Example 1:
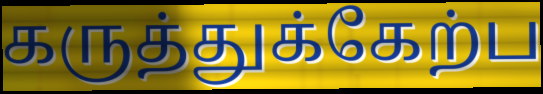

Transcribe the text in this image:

கருத்துக்கேற்ப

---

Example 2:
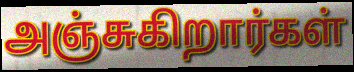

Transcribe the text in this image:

அஞ்சுகிறார்கள்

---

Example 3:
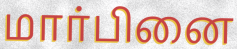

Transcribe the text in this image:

மார்பினை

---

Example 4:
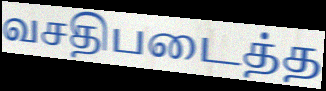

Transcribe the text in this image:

வசதிபடைத்த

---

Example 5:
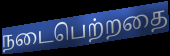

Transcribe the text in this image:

நடைபெற்றதை